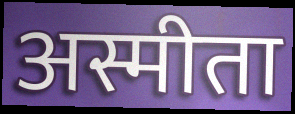
अस्मीता